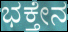
ಭಕ್ತೇನ